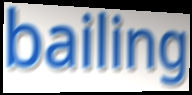
bailing